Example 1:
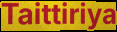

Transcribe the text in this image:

Taittiriya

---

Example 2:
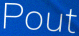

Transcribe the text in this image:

Pout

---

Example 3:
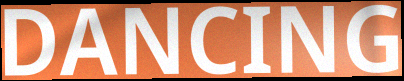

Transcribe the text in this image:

DANCING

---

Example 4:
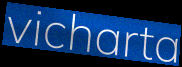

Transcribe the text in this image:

vicharta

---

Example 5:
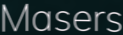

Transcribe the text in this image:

Masers